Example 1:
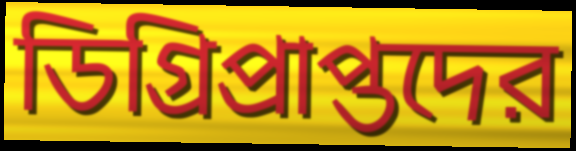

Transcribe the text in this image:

ডিগ্রিপ্রাপ্তদের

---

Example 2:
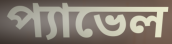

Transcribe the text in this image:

প্যাভেল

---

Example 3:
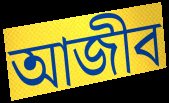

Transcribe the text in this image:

আজীব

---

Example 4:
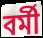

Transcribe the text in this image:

বর্মী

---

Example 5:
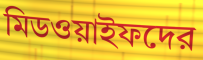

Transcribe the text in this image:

মিডওয়াইফদের